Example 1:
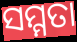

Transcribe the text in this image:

ସମ୍ମତା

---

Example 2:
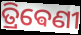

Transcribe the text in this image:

ତ୍ରିଵେଣୀ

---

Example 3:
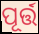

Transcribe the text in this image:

ପୂର୍ତ୍ତ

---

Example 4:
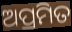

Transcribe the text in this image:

ଅପ୍ରମିତ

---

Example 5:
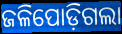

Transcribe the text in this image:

ଜଳିପୋଡ଼ିଗଲା